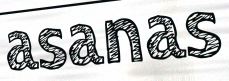
asanas